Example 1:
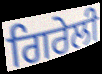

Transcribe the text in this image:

ਗਿਰੇਲੀ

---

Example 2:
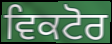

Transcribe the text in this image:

ਵਿਕਟੋਰ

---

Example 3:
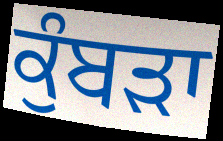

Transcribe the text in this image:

ਕੁੰਬੜਾ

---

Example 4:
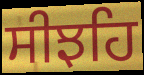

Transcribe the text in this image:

ਸੀਝਹਿ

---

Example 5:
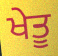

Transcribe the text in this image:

ਖੇਤੂ